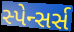
સ્પેન્સર્સ